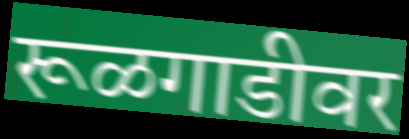
रूळगाडीवर